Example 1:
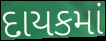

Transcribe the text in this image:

દાયકમાં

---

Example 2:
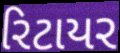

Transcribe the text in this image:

રિટાયર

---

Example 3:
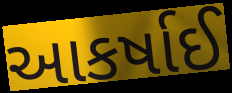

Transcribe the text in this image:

આકર્ષાઈ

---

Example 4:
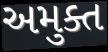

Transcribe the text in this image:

અમુક્ત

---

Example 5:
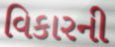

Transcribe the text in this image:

વિકારની